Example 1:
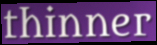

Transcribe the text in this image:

thinner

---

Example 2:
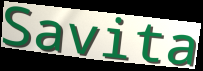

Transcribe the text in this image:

Savita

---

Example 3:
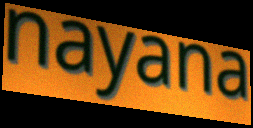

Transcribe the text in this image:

nayana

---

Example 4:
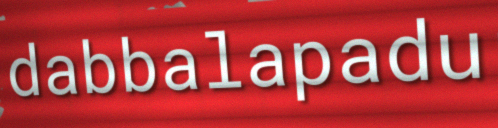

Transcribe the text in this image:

dabbalapadu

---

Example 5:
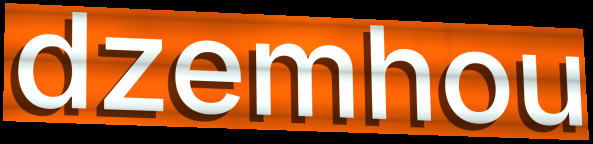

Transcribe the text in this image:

dzemhou